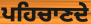
ਪਹਿਚਾਣਦੇ